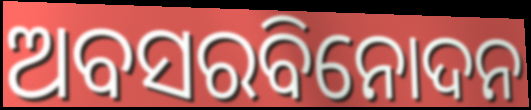
ଅବସରବିନୋଦନ